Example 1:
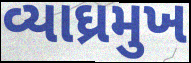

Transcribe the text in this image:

વ્યાઘ્રમુખ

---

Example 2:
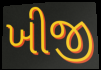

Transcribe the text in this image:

ખીજી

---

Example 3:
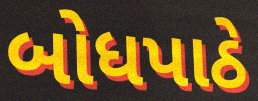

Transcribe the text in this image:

બોધપાઠે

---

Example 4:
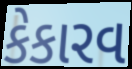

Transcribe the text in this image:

કેકારવ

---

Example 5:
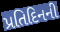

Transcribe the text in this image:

પ્રતિદિનની